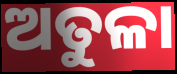
ଅତୁଳା